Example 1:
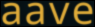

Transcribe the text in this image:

aave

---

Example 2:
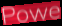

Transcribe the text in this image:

Powe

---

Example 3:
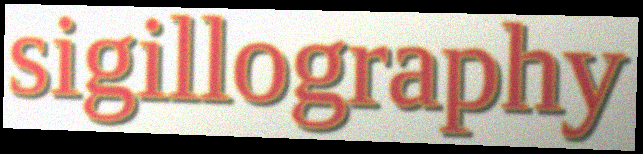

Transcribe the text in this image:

sigillography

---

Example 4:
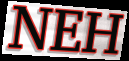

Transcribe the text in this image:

NEH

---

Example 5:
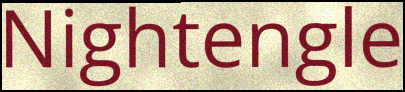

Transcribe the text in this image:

Nightengle